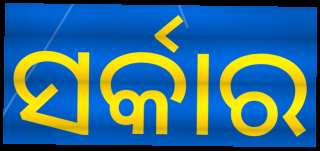
ସର୍କାର